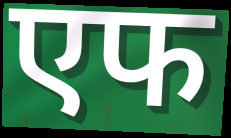
एफ